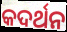
କଦର୍ଥନ